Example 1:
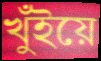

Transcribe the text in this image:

খুঁইয়ে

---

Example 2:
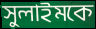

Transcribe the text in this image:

সুলাইমকে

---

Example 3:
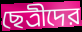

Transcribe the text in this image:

ছেত্রীদের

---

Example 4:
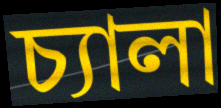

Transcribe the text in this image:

চ্যালা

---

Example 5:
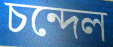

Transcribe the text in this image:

চন্দেল